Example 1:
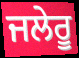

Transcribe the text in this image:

ਜਲੇਰੂ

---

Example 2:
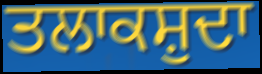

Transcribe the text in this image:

ਤਲਾਕਸ਼ੁਦਾ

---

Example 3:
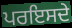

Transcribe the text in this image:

ਪਰਇਸਦੇ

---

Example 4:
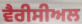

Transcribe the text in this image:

ਵੈਰੀਸੀਅਲ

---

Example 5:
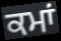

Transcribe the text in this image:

ਕਮਾਂ